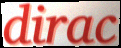
dirac